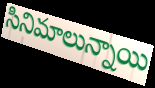
సినిమాలున్నాయి